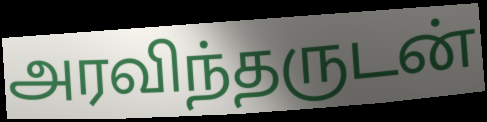
அரவிந்தருடன்